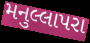
મનુલ્લાપરા